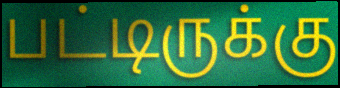
பட்டிருக்கு